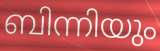
ബിന്നിയും